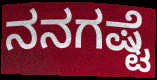
ನನಗಷ್ಟೆ